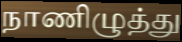
நாணிழுத்து